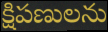
క్షిపణులను